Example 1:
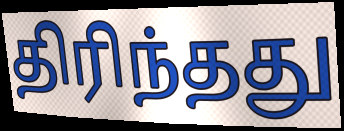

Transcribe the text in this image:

திரிந்தது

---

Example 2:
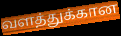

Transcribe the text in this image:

வளத்துக்கான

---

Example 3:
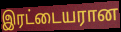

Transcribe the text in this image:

இரட்டையரான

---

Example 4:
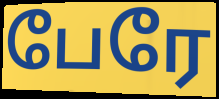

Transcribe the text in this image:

பேரே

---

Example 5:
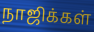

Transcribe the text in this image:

நாஜிக்கள்